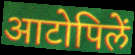
आटोपिलें